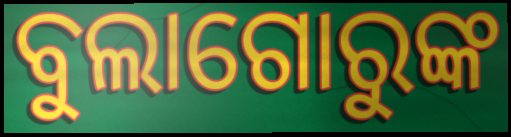
ବୁଲାଗୋରୁଙ୍କ